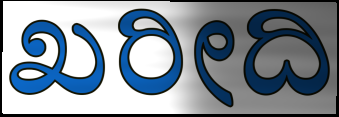
ಖರೀದಿ